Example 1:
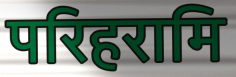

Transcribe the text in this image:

परिहरामि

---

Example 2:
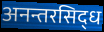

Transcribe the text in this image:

अनन्तरसिद्ध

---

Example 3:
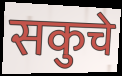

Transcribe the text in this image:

सकुचे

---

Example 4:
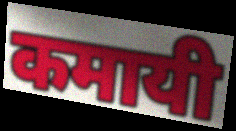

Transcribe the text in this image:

कमायी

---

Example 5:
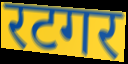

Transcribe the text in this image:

रटगर